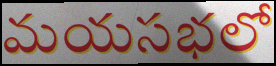
మయసభలో